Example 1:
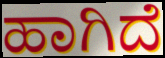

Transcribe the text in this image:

ಹಾಗಿದೆ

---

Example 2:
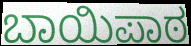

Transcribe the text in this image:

ಬಾಯಿಪಾಠ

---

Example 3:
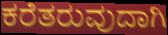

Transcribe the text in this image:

ಕರೆತರುವುದಾಗಿ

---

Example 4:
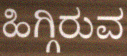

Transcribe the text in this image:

ಹಿಗ್ಗಿರುವ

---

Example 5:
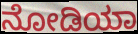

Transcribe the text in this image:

ನೋಡಿಯಾ